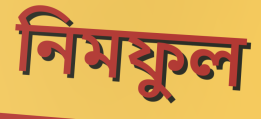
নিমফুল